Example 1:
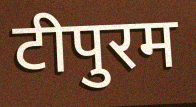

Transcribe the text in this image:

टीपुरम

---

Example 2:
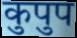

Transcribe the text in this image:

कुपुप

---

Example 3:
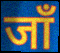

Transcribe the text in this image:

जाँ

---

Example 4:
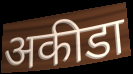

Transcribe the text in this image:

अकीडा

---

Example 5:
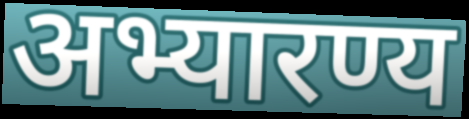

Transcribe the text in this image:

अभ्यारण्य